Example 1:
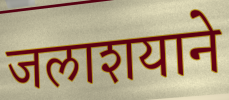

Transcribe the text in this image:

जलाशयाने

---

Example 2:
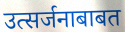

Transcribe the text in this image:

उत्सर्जनाबाबत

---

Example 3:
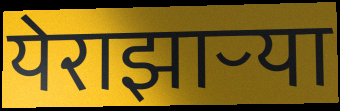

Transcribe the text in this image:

येराझाऱ्या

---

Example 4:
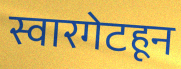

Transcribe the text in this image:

स्वारगेटहून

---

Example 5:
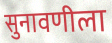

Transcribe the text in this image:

सुनावणीला